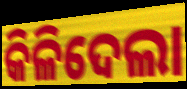
କିଳିଦେଲା